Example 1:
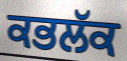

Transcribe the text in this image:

ਕਭਲੱਕ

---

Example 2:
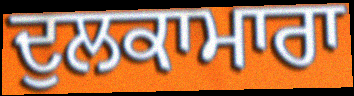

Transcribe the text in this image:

ਦੁਲਕਾਮਾਰਾ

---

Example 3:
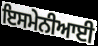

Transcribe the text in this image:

ਇਸਮੇਨੀਆਈ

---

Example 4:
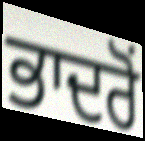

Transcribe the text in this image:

ਭਾਦਰੋਂ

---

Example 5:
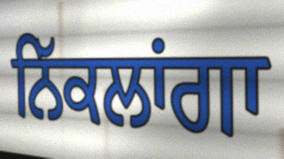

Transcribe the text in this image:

ਨਿੱਕਲਾਂਗਾ